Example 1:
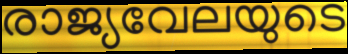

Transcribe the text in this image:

രാജ്യവേലയുടെ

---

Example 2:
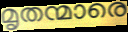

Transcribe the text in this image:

മൃതന്മാരെ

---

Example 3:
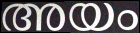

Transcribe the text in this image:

അയം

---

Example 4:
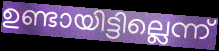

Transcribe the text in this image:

ഉണ്ടായിട്ടില്ലെന്ന്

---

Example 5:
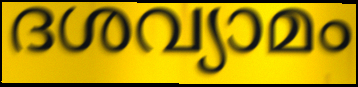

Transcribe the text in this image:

ദശവ്യാമം